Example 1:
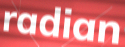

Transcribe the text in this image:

radian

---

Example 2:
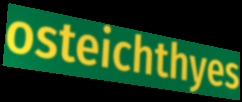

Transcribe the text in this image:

osteichthyes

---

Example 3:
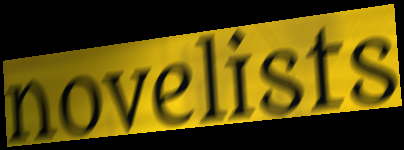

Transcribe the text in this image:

novelists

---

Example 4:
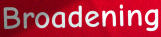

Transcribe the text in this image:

Broadening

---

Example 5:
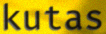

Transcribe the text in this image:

kutas